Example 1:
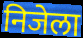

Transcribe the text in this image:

निजेला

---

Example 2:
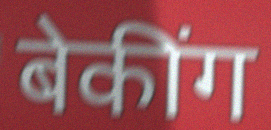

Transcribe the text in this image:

बेकींग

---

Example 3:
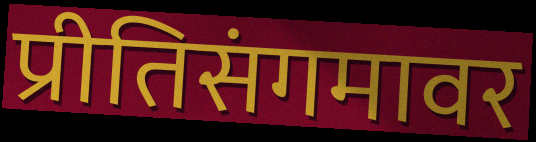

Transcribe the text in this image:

प्रीतिसंगमावर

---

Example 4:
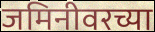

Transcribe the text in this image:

जमिनीवरच्या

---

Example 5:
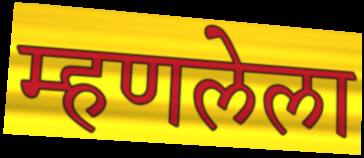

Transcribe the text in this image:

म्हणलेला